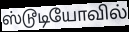
ஸ்டூடியோவில்